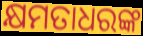
କ୍ଷମତାଧରଙ୍କ